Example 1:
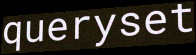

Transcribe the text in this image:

queryset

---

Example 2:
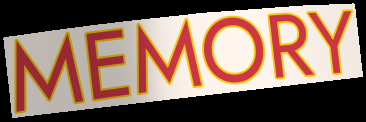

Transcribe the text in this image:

MEMORY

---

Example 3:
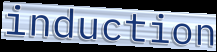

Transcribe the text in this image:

induction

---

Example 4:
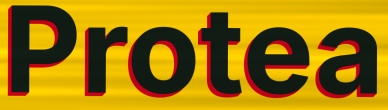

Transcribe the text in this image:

Protea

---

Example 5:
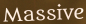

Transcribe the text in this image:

Massive